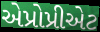
એપ્રોપ્રીએટ